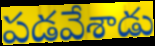
పడవేశాడు